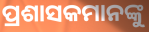
ପ୍ରଶାସକମାନଙ୍କୁ